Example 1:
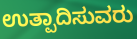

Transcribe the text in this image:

ಉತ್ಪಾದಿಸುವರು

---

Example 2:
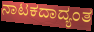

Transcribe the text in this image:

ನಾಟಕದಾದ್ಯಂತ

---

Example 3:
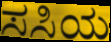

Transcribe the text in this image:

ಸಸಿಯ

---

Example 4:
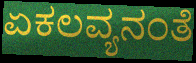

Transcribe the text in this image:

ಏಕಲವ್ಯನಂತೆ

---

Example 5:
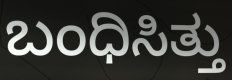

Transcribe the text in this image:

ಬಂಧಿಸಿತ್ತು